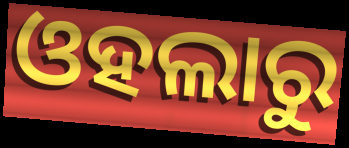
ଓହଲାରୁ